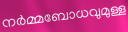
നർമ്മബോധവുമുള്ള